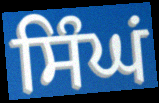
ਸਿੰਘਂ